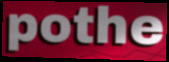
pothe